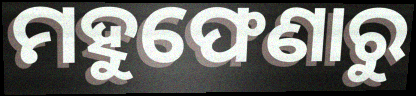
ମହୁଫେଣାରୁ